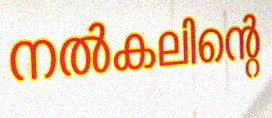
നൽകലിന്റെ